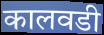
कालवडी